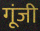
गूंजी